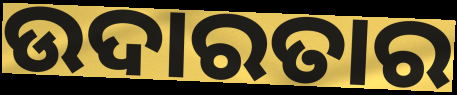
ଉଦାରତାର